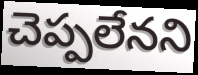
చెప్పలేనని